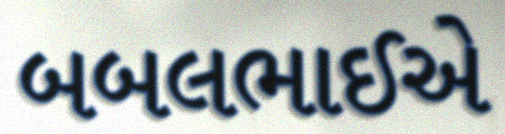
બબલભાઈએ